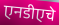
एनडीएचे